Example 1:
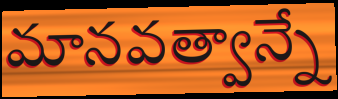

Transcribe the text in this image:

మానవత్వాన్నే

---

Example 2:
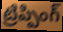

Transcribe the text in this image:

ట్రిప్పింగ్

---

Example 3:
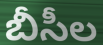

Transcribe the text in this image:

బీసీల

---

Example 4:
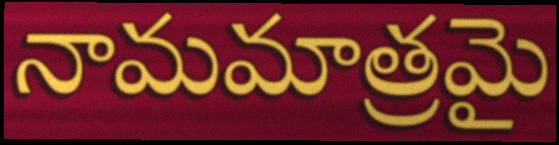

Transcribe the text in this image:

నామమాత్రమై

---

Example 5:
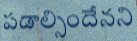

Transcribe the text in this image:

పడాల్సిందేనని